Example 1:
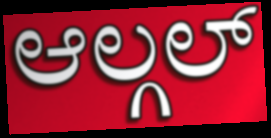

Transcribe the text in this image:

ಆಲ್ಗಲ್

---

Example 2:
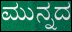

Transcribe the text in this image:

ಮುನ್ನದ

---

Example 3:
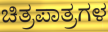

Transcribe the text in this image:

ಚಿತ್ರಪಾತ್ರಗಳ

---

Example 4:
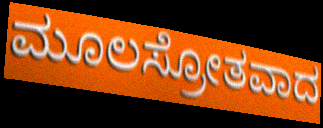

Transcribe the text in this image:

ಮೂಲಸ್ರೋತವಾದ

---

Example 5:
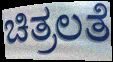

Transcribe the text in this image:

ಚಿತ್ರಲತೆ